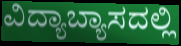
ವಿದ್ಯಾಬ್ಯಾಸದಲ್ಲಿ